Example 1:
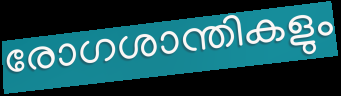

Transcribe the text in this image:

രോഗശാന്തികളും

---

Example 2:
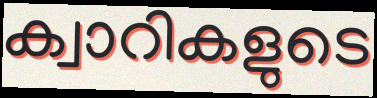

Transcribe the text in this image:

ക്വാറികളുടെ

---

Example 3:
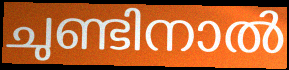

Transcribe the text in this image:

ചുണ്ടിനാൽ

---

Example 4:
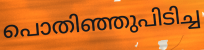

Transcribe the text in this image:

പൊതിഞ്ഞുപിടിച്ച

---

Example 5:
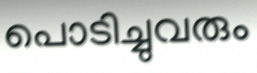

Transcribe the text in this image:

പൊടിച്ചുവരും